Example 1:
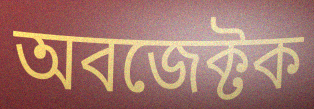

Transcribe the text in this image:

অবজেক্টক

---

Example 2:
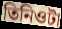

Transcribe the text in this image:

তিনিওটা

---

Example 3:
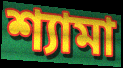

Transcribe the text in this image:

শ্যামা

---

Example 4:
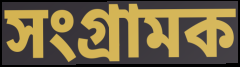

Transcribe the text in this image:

সংগ্ৰামক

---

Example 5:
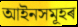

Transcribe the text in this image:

আইনসমূহৰ